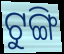
ଟୁଙ୍ଗି